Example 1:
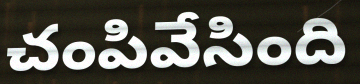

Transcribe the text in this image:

చంపివేసింది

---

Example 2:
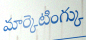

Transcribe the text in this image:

మార్కెటింగ్కు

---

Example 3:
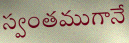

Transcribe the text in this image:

స్వంతముగానే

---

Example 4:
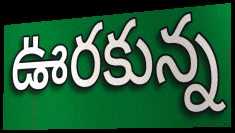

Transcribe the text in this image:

ఊరకున్న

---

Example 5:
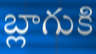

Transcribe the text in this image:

బ్లాగుకి